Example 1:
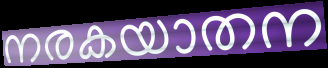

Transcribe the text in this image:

നരകയാതന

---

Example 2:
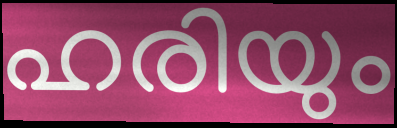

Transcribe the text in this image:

ഹരിയും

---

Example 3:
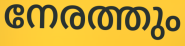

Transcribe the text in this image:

നേരത്തും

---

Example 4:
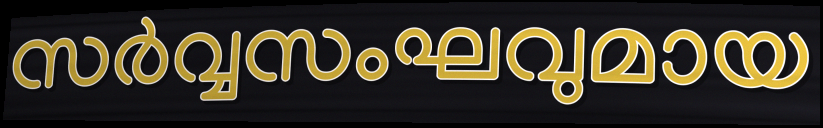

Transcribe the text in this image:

സർവ്വസംഘവുമായ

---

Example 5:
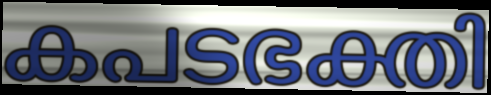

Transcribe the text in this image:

കപടഭക്തി